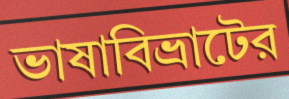
ভাষাবিভ্রাটের